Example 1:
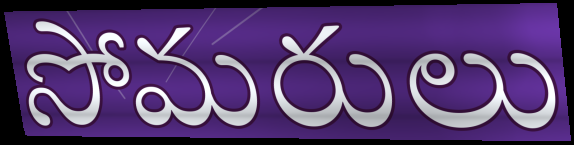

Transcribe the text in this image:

సోమరులు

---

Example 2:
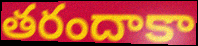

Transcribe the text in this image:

తరందాకా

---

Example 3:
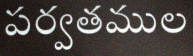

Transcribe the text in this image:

పర్వతముల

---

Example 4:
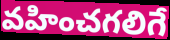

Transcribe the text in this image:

వహించగలిగే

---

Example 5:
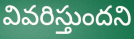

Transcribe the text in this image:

వివరిస్తుందని